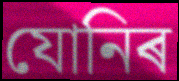
যোনিৰ